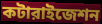
কটারাইজেশন